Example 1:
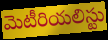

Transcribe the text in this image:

మెటీరియలిస్టు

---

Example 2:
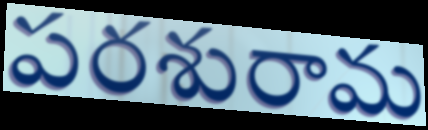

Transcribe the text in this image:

పరశురామ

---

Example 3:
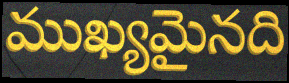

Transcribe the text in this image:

ముఖ్యమైనది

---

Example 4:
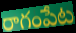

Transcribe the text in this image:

రాగంపేట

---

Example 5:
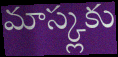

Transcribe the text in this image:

మాస్క్లకు